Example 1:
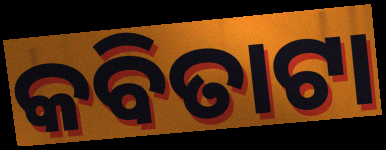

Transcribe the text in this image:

କବିତାଟା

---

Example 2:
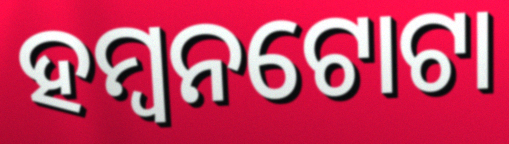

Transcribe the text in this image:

ହମ୍ବନଟୋଟା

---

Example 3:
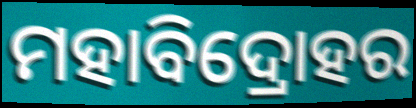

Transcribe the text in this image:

ମହାବିଦ୍ରୋହର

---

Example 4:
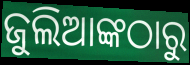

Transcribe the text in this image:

ଜୁଲିଆଙ୍କଠାରୁ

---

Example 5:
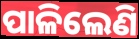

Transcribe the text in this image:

ପାଳିଲେଣି